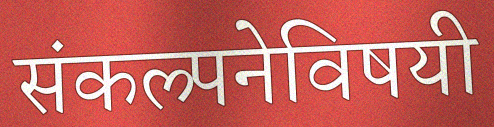
संकल्पनेविषयी